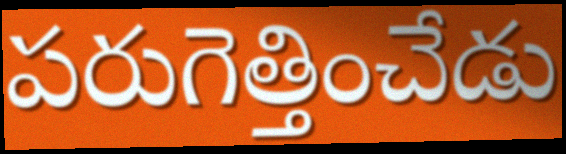
పరుగెత్తించేడు